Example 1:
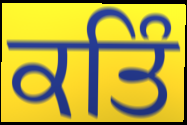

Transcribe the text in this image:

ਕਤਿੰ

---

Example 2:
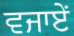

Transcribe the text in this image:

ਵਜਾਏਂ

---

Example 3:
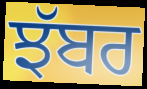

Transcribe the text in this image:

ਝੱਬਰ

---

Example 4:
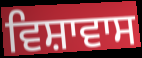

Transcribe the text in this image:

ਵਿਸ਼ਾਵਾਸ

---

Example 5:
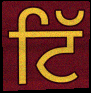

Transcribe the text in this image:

ਟਿੱ